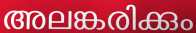
അലങ്കരിക്കും